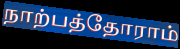
நாற்பத்தோராம்